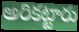
అరికట్టారు